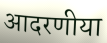
आदरणीया